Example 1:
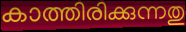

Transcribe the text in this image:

കാത്തിരിക്കുന്നതു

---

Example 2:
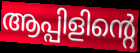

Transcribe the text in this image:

ആപ്പിളിന്റെ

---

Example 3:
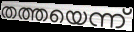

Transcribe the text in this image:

തത്തയെന്ന്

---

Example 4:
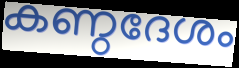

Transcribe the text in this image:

കണ്ഠദേശം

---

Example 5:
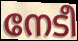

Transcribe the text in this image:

നേടീ